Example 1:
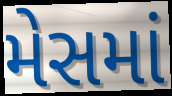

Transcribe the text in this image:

મેસમાં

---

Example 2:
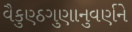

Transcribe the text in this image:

વૈકુણ્ઠગુણાનુવર્ણને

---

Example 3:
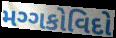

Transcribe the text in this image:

મગ્ગકોવિદો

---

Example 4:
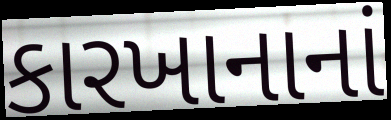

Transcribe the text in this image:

કારખાનાનાં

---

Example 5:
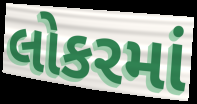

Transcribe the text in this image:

લોકરમાં